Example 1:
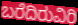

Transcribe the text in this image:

ಬರೆದಿರುವಿರಿ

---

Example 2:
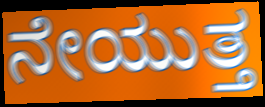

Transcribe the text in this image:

ನೇಯುತ್ತ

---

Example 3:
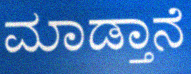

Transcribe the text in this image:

ಮಾಡ್ತಾನೆ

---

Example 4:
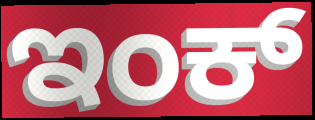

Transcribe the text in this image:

ಇಂಕ್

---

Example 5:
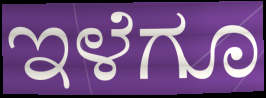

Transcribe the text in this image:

ಇಳೆಗೂ